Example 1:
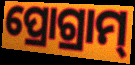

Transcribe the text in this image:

ପ୍ରୋଗ୍ରାମ୍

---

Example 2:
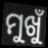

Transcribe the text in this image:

ମୁଖୁଁ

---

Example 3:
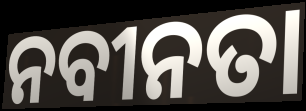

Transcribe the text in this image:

ନବୀନତା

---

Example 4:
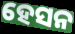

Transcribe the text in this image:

ହେସନ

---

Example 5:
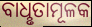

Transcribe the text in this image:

ବାଧୢତାମୂଳକ